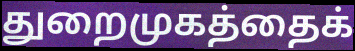
துறைமுகத்தைக்